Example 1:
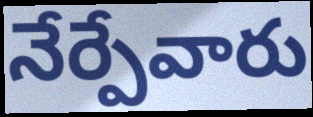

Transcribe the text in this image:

నేర్పేవారు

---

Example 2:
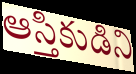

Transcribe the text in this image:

ఆస్తికుడిని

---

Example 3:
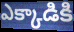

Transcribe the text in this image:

ఎక్కాడికి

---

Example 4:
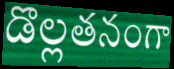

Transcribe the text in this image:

డొల్లతనంగా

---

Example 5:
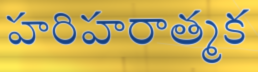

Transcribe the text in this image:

హరిహరాత్మక